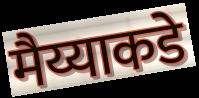
मैय्याकडे